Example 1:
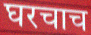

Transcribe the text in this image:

घरचाच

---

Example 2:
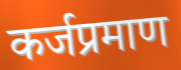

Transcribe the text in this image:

कर्जप्रमाण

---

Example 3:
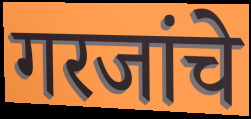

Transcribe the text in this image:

गरजांचे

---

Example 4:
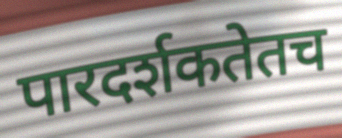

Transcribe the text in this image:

पारदर्शकतेतच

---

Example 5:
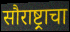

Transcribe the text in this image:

सौराष्ट्राचा